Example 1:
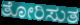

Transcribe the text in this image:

ತೋರಿಸುತ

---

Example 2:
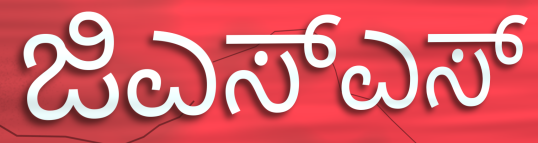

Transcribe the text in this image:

ಜಿಎಸ್ಎಸ್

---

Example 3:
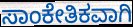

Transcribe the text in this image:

ಸಾಂಕೇತಿಕವಾಗಿ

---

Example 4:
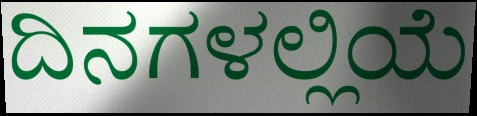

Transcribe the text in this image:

ದಿನಗಳಲ್ಲಿಯೆ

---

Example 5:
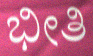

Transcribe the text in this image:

ಭೀತಿ